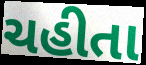
ચહીતા